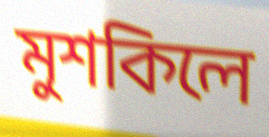
মুশকিলে